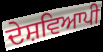
ਦੇਸ਼ਵਿਆਪੀ